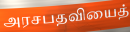
அரசபதவியைத்